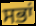
ਸਭਾਂ